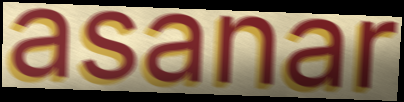
asanar